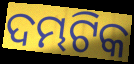
ଦମ୍ଭଟିକ